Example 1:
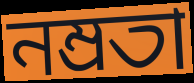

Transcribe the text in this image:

নম্ৰতা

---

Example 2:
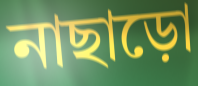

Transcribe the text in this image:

নাছাড়ো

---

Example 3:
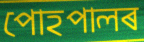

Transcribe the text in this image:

পোহপালৰ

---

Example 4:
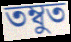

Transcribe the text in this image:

তম্বুত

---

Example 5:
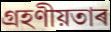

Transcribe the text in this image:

গ্ৰহণীয়তাৰ